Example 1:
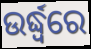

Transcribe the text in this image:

ଉର୍ଦ୍ଧ୍ଵରେ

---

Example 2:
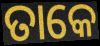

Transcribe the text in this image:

ତାକେ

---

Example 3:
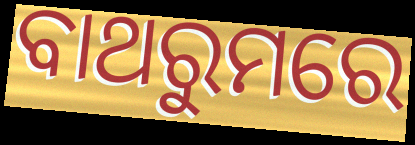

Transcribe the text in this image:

ବାଥରୁମରେ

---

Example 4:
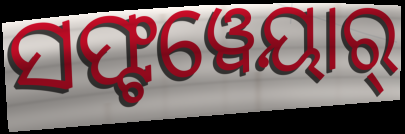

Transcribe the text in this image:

ସଫ୍ଟୱେୟାର୍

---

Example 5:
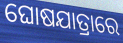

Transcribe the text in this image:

ଘୋଷଯାତ୍ରାରେ